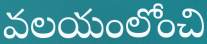
వలయంలోంచి